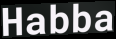
Habba